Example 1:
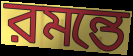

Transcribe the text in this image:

রমন্তে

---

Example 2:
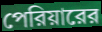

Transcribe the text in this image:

পেরিয়ারের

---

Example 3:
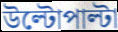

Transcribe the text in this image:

উল্টোপাল্টা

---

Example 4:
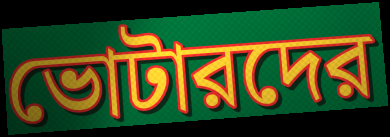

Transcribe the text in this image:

ভোটারদের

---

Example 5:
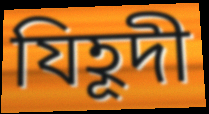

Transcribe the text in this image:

যিহূদী